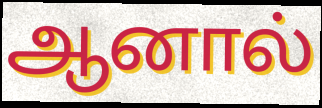
ஆனால்